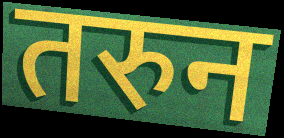
तरुन